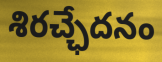
శిరచ్ఛేదనం